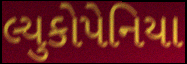
લ્યુકોપેનિયા